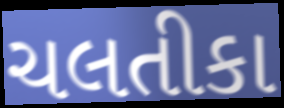
ચલતીકા